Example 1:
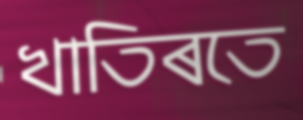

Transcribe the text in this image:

খাতিৰতে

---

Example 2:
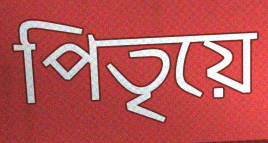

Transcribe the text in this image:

পিতৃয়ে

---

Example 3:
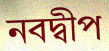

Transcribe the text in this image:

নবদ্বীপ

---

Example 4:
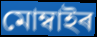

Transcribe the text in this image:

মোম্বাইৰ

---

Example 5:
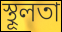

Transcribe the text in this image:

স্থূলতা